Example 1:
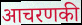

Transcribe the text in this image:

आचरणकी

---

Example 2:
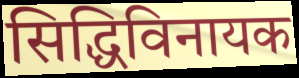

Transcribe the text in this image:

सिद्धिविनायक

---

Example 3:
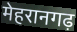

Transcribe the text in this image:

मेहरानगढ़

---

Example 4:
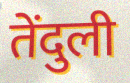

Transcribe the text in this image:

तेंदुली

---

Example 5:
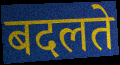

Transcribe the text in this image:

बदलते